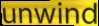
unwind